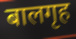
बालगृह